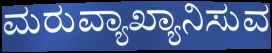
ಮರುವ್ಯಾಖ್ಯಾನಿಸುವ